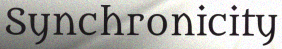
Synchronicity